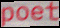
poet